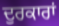
ਦੁਰਕਾਰਾਂ